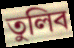
তুলিব